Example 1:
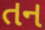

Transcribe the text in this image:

તન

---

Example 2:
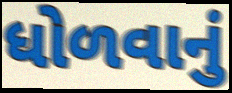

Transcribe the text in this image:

ધોળવાનું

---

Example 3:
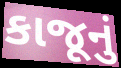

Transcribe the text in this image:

કાજૂનું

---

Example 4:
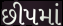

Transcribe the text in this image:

છીપમાં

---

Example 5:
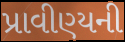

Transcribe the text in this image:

પ્રાવીણ્યની